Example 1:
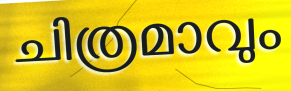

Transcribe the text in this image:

ചിത്രമാവും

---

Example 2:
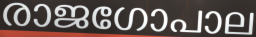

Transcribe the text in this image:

രാജഗോപാല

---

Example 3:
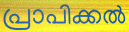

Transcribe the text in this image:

പ്രാപിക്കൽ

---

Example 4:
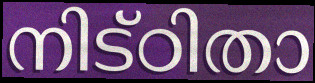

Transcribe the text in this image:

നിട്ഠിതാ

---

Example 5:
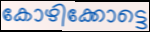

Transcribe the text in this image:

കോഴിക്കോട്ടെ